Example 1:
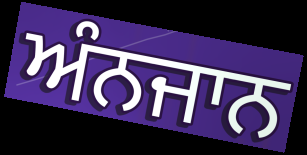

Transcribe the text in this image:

ਅੰਨਜਾਨ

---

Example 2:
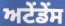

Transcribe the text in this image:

ਅਟੇਂਡੇਂਸ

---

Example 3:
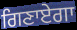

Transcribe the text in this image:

ਗਿਣਾਏਗਾ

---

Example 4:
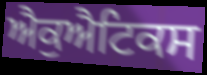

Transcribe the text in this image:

ਐਕੁਐਟਿਕਸ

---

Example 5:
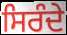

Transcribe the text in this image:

ਸਿਰੰਦੇ